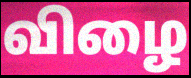
விழை